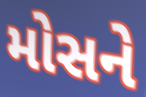
મોસને